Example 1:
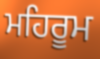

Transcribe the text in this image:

ਮਹਿਰੂਮ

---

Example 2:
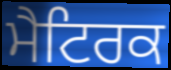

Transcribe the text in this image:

ਮੈਟਿਰਕ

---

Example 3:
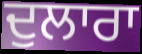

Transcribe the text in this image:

ਦੁਲਾਰਾ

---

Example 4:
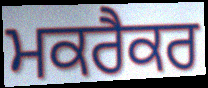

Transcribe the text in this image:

ਮਕਰੈਕਰ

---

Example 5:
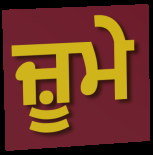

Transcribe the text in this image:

ਜ਼ੂਮੇ